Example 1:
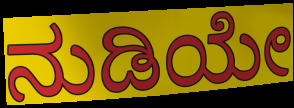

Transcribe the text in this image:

ನುಡಿಯೇ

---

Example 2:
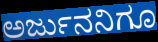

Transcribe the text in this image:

ಅರ್ಜುನನಿಗೂ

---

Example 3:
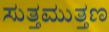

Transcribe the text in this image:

ಸುತ್ತಮುತ್ತಣ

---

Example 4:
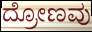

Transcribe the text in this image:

ದ್ರೋಣವು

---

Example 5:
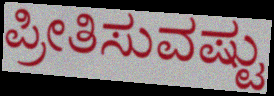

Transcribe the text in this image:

ಪ್ರೀತಿಸುವಷ್ಟು